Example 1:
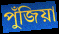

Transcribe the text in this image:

পুঁজিয়া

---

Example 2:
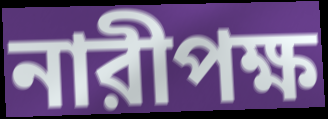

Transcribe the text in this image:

নারীপক্ষ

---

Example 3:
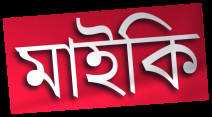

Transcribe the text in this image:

মাইকি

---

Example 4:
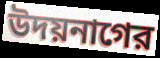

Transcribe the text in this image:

উদয়নাগের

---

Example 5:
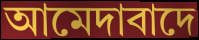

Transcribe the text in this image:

আমেদাবাদে